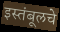
इस्तंबूलचे